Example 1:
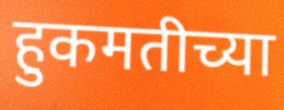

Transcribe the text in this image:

हुकमतीच्या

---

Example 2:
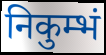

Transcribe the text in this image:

निकुम्भं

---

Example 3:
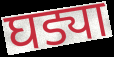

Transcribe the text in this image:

घड्या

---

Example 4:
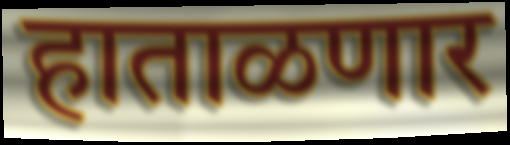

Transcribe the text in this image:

हाताळणार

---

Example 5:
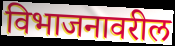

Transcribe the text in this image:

विभाजनावरील